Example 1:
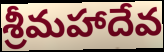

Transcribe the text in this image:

శ్రీమహాదేవ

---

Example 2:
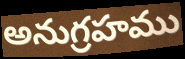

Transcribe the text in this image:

అనుగ్రహము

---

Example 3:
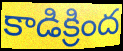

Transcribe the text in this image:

కాడిక్రింద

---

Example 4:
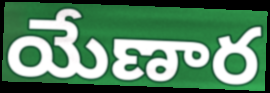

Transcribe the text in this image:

యేణార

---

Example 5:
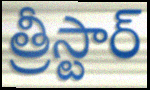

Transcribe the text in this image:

త్రీస్టార్